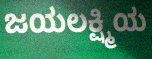
ಜಯಲಕ್ಷ್ಮಿಯ